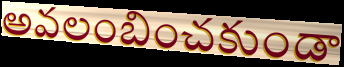
అవలంబించకుండా